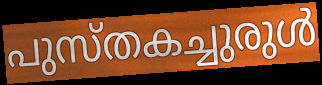
പുസ്തകച്ചുരുൾ